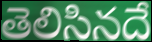
తెలిసినదే